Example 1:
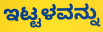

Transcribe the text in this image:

ಇಟ್ಟಳವನ್ನು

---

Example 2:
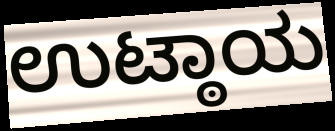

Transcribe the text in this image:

ಉಟ್ಠಾಯ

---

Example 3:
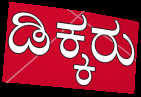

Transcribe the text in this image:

ಡಿಕ್ಕರು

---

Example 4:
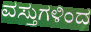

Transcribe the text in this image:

ವಸ್ತುಗಳಿಂದ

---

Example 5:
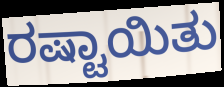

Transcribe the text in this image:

ರಷ್ಟಾಯಿತು